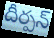
దీర్పన్